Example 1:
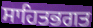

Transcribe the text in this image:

ਸਾਹਿਤਭਗਤ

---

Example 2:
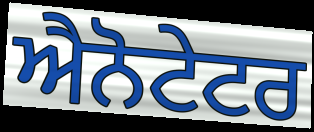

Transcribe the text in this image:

ਐਨੋਟੇਟਰ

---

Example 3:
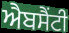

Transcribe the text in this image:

ਐਬਸੈਂਟੀ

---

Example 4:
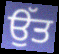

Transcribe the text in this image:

ਉੱਤ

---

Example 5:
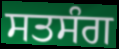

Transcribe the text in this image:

ਸਤਸੰਗ